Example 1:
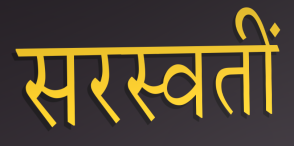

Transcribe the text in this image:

सरस्वतीं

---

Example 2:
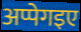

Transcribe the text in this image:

अप्पेगइए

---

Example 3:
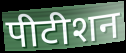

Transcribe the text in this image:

पीटीशन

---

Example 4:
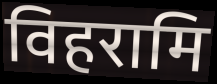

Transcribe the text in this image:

विहरामि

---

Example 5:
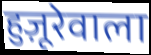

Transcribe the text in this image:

हुज़ूरेवाला